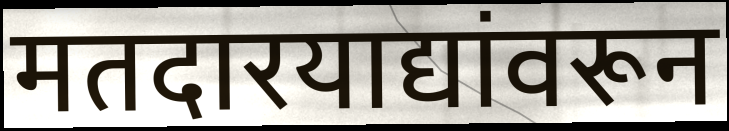
मतदारयाद्यांवरून